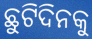
ଛୁଟିଦିନକୁ